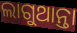
ଲାଗୁଥାନ୍ତା